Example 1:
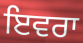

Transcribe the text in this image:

ਇਵਰਾ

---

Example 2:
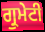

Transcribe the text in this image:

ਗ੍ਰੁਮੇਟੀ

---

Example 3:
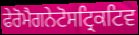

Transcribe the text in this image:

ਫੇਰੋਮੈਗਨੇਟੋਸਟ੍ਰਿਕਟਿਵ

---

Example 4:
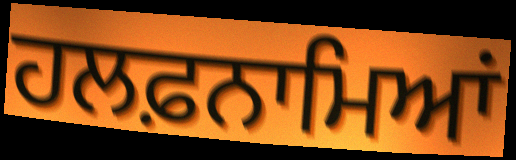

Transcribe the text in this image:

ਹਲਫ਼ਨਾਮਿਆਂ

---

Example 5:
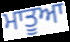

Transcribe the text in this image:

ਮਾਤੂਆ